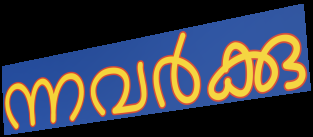
ന്നവർക്കു